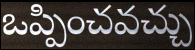
ఒప్పించవచ్చు